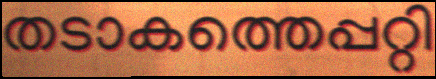
തടാകത്തെപ്പറ്റി